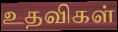
உதவிகள்